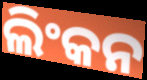
ଲିଂକନ